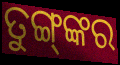
ତୁଙ୍ଗ୍‍ଙ୍କର